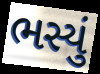
ભસ્યું